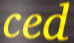
ced